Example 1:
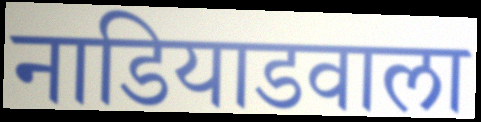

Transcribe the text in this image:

नाडियाडवाला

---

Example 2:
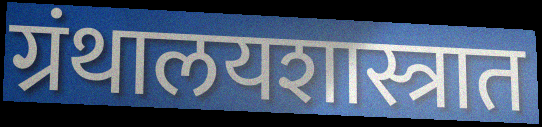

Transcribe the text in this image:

ग्रंथालयशास्त्रात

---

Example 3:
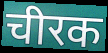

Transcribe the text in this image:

चीरक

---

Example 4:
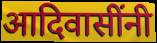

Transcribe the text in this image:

आदिवासींनी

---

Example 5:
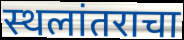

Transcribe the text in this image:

स्थलांतराचा